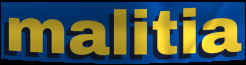
malitia